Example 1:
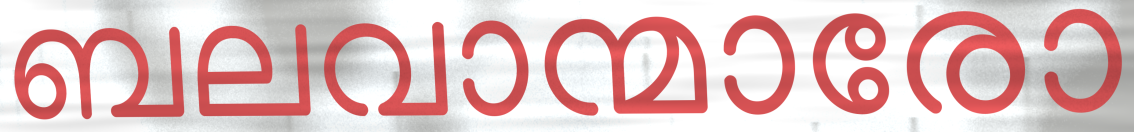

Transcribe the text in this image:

ബലവാന്മാരോ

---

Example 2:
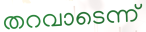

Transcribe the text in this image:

തറവാടെന്ന്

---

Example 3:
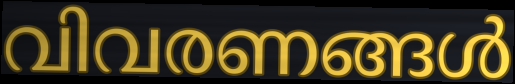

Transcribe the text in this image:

വിവരണങ്ങൾ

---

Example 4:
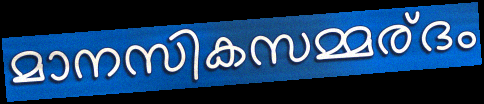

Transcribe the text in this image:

മാനസികസമ്മര്ദം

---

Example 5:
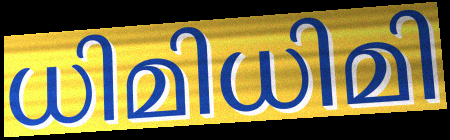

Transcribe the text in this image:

ധിമിധിമി